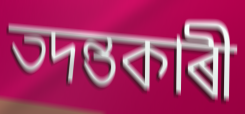
তদন্তকাৰী